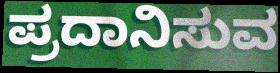
ಪ್ರದಾನಿಸುವ